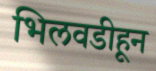
भिलवडीहून